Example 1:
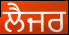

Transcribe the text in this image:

ਲੈਜਰ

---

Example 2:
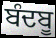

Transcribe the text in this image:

ਬੰਦਬੂ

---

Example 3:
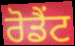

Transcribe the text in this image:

ਰੋਡੈਂਟ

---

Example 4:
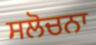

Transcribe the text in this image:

ਸਲੋਚਨਾ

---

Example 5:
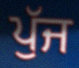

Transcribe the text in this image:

ਪੁੱਜ